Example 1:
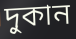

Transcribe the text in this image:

দুকান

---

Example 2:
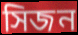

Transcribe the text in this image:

সিজন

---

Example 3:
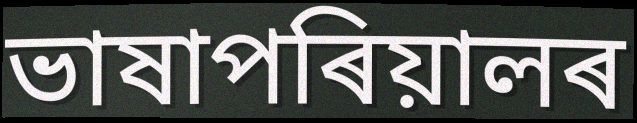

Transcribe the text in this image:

ভাষাপৰিয়ালৰ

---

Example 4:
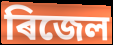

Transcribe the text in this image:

ৰিজেল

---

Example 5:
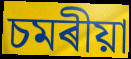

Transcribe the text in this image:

চমৰীয়া